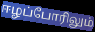
ஈழப்போரிலும்